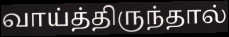
வாய்த்திருந்தால்